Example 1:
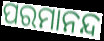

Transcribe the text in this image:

ପରମାନନ୍ଦ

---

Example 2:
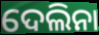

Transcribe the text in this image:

ଦେଲିନା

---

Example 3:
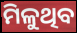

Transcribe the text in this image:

ମିଳୁଥିବ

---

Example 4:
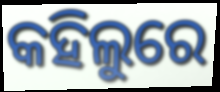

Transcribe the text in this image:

କହିଲୁରେ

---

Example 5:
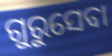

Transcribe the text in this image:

ଗୁରୁସେବା